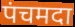
पंचमदा